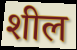
शील